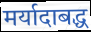
मर्यादाबद्ध